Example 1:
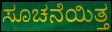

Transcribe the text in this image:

ಸೂಚನೆಯಿತ್ತ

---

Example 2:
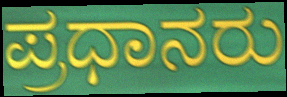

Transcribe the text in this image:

ಪ್ರಧಾನರು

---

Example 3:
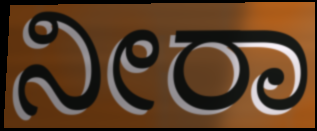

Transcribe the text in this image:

ನೀರಾ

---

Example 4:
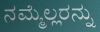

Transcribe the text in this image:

ನಮ್ಮೆಲ್ಲರನ್ನು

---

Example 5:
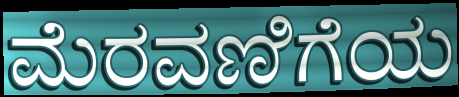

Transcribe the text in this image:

ಮೆರವಣಿಗೆಯ